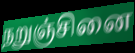
நறுஞ்சினை